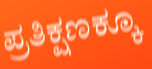
ಪ್ರತಿಕ್ಷಣಕ್ಕೂ